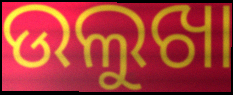
ଉଲୁଖା